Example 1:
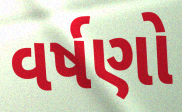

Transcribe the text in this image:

વર્ષણો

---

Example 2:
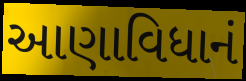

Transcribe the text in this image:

આણાવિધાનં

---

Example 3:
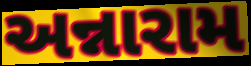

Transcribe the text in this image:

અન્નારામ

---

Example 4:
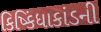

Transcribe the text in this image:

કિષ્કિંધાકાંડની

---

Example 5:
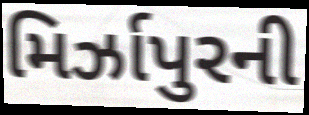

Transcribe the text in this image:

મિર્ઝાપુરની